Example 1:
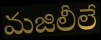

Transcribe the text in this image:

మజిలీలే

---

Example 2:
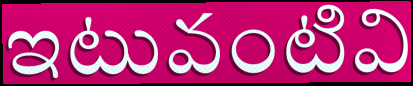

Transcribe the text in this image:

ఇటువంటివి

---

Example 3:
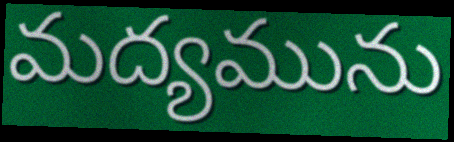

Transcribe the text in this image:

మద్యమును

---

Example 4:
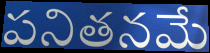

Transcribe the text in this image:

పనితనమే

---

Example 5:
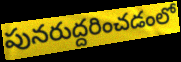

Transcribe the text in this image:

పునరుద్దరించడంలో